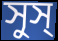
সুস্